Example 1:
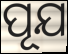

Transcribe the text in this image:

ପୂଯ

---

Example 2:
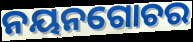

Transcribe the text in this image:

ନୟନଗୋଚର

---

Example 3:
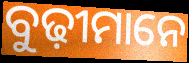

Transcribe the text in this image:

ବୁଢ଼ୀମାନେ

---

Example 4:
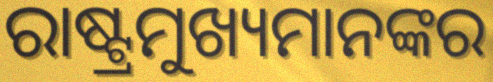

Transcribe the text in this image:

ରାଷ୍ଟ୍ରମୁଖ୍ୟମାନଙ୍କର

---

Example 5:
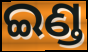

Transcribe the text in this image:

ଇଣ୍ଡ